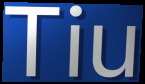
Tiu